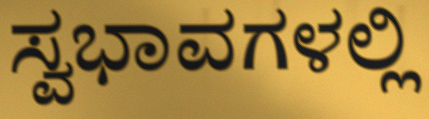
ಸ್ವಭಾವಗಳಲ್ಲಿ